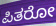
ಪಿತರೋ